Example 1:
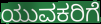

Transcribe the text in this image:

ಯುವಕರಿಗೆ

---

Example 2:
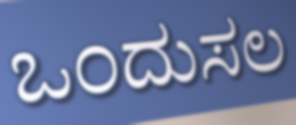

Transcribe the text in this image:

ಒಂದುಸಲ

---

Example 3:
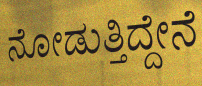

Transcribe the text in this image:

ನೋಡುತ್ತಿದ್ದೇನೆ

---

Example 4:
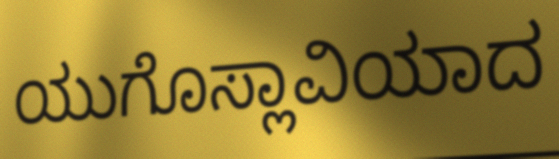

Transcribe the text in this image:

ಯುಗೊಸ್ಲಾವಿಯಾದ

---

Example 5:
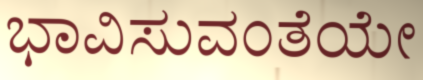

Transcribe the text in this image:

ಭಾವಿಸುವಂತೆಯೇ